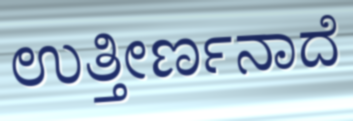
ಉತ್ತೀರ್ಣನಾದೆ